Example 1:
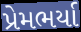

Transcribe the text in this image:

પ્રેમભર્યા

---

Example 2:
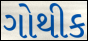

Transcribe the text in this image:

ગોથીક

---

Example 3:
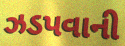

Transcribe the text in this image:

ઝડપવાની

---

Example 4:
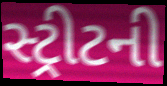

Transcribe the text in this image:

સ્ટ્રીટની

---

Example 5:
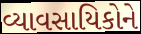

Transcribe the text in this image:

વ્યાવસાયિકોને